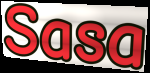
Sasa